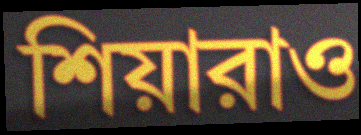
শিয়ারাও